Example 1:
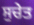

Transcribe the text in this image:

ਸੁਚੇਤ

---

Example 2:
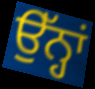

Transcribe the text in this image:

ਉੱਨ੍ਹਾਂ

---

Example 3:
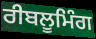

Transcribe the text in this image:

ਰੀਬਲੂਮਿੰਗ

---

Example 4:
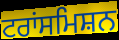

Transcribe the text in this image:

ਟਰਾਂਸਮਿਸ਼ਨ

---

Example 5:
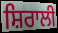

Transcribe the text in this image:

ਸ਼ਿਰਾਲੀ